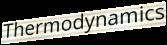
Thermodynamics